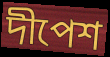
দীপেশ